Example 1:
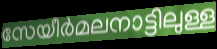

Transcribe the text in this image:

സേയീർമലനാട്ടിലുള്ള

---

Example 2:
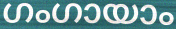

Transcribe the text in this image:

ഗംഗായാം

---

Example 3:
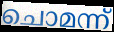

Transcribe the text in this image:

ചൊമന്ന്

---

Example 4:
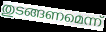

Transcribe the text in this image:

തുടങ്ങണമെന്ന്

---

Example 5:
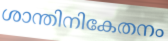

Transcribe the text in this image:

ശാന്തിനികേതനം